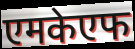
एमकेएफ